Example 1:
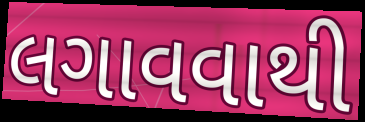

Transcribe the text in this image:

લગાવવાથી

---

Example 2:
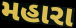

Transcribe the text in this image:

મહારા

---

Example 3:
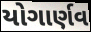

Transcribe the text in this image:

યોગાર્ણવ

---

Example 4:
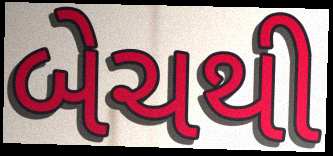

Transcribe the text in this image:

બેચથી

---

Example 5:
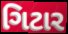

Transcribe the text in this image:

ગિટાર